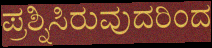
ಪ್ರಶ್ನಿಸಿರುವುದರಿಂದ